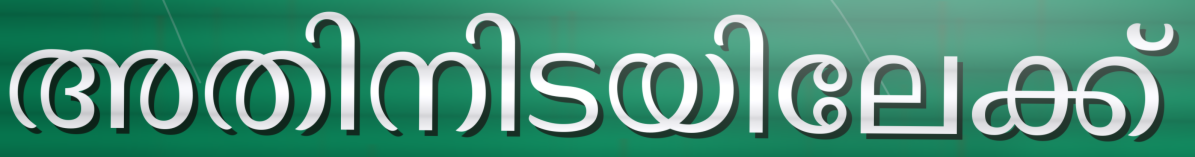
അതിനിടയിലേക്ക്